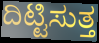
ದಿಟ್ಟಿಸುತ್ತ